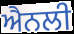
ਐਨਲੀ